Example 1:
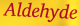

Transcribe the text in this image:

Aldehyde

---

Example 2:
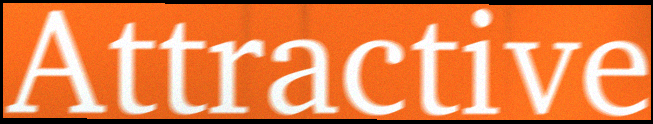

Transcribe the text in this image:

Attractive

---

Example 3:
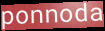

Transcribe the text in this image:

ponnoda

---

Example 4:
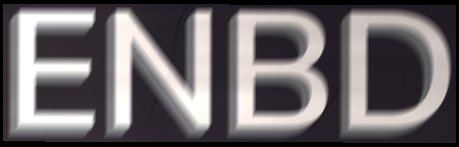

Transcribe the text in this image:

ENBD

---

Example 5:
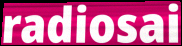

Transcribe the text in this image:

radiosai